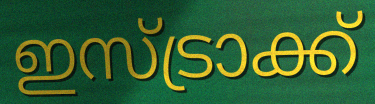
ഇസ്ട്രാക്ക്